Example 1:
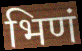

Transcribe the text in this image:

भिणं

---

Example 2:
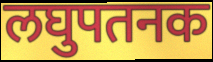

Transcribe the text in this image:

लघुपतनक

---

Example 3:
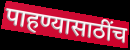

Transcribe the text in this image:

पाहण्यासाठींच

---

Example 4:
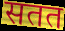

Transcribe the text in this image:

सतत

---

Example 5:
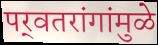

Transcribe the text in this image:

पर्वतरांगांमुळे